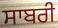
ਸਾਬਰੀ